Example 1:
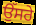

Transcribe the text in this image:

ਉੱਸਰੇ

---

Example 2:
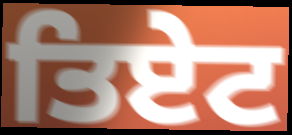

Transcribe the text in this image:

ਤਿਏਟ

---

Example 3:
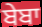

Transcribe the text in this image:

ਬੇਬਾ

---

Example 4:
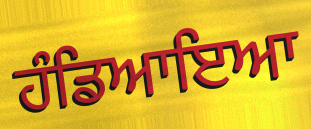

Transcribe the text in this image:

ਹੰਡਿਆਇਆ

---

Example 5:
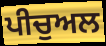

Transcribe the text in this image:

ਪੀਚੁਅਲ